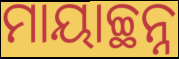
ମାୟାଚ୍ଛନ୍ନ